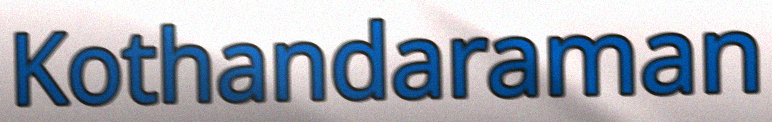
Kothandaraman